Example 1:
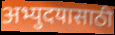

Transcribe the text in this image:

अभ्युदयासाठी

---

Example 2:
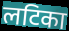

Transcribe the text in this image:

लटिका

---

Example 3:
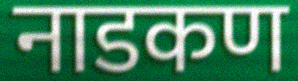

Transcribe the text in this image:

नाडकण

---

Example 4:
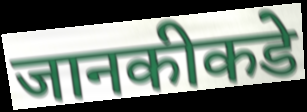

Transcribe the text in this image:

जानकीकडे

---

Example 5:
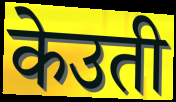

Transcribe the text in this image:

केउती